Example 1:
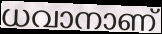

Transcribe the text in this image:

ധവാനാണ്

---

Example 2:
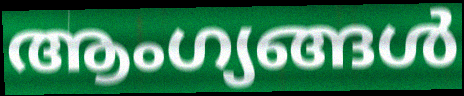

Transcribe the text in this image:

ആംഗ്യങ്ങൾ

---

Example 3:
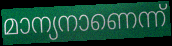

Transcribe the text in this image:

മാന്യനാണെന്ന്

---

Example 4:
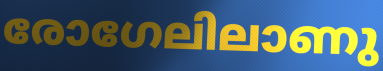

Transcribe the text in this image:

രോഗേലിലാണു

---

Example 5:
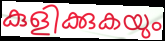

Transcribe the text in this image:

കുളിക്കുകയും